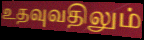
உதவுவதிலும்